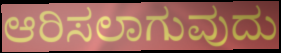
ಆರಿಸಲಾಗುವುದು